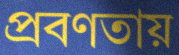
প্রবণতায়